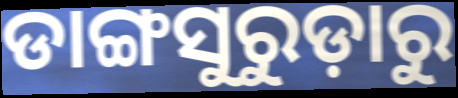
ଡାଙ୍ଗସୁରୁଡ଼ାରୁ